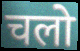
चलो